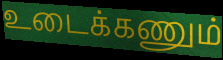
உடைக்கணும்